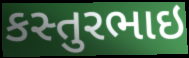
કસ્તુરભાઇ